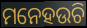
ମନେହଉଚି